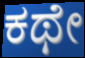
ಕಥೇ